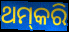
ଥମ୍‌କରି